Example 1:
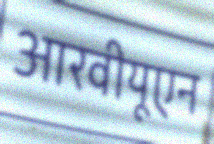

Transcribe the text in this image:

आरवीयूएन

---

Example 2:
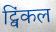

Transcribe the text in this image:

ट्विंकल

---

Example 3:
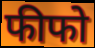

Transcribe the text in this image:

फीफो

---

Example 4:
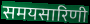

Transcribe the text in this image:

समयसारिणी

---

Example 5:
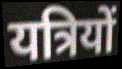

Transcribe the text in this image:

यत्रियों